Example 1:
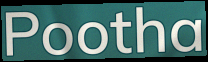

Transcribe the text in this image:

Pootha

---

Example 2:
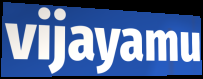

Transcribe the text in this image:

vijayamu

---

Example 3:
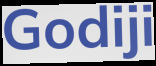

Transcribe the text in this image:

Godiji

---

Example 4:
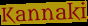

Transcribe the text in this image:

Kannaki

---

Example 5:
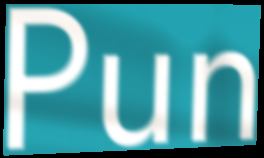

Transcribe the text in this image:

Pun